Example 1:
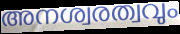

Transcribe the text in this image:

അനശ്വരത്വവും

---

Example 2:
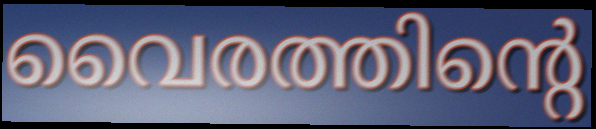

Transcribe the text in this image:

വൈരത്തിന്റെ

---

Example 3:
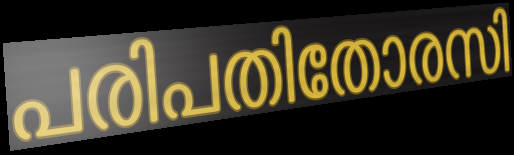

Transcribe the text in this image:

പരിപതിതോരസി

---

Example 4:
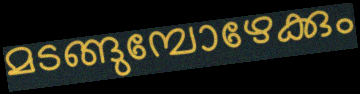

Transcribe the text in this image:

മടങ്ങുമ്പോഴേക്കും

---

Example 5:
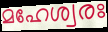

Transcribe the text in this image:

മഹേശ്വരഃ